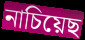
নাচিয়েছ